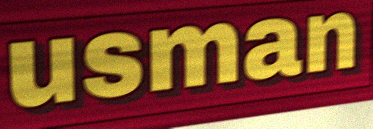
usman